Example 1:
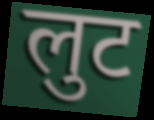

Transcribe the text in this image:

लुट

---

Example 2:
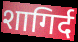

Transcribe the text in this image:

शागिर्द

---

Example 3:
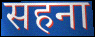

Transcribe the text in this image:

सहना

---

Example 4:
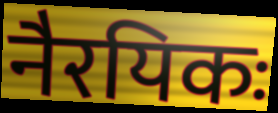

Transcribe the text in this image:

नैरयिकः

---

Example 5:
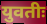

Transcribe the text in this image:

युवतीः